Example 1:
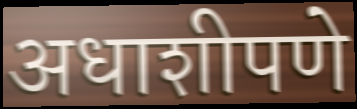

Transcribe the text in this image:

अधाशीपणे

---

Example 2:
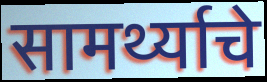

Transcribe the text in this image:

सामर्थ्याचे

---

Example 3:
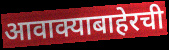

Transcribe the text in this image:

आवाक्याबाहेरची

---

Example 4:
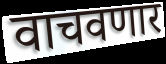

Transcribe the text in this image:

वाचवणार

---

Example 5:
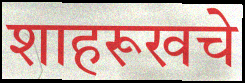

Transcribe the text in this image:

शाहरूखचे